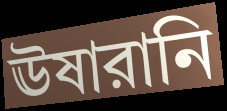
ঊষারানি